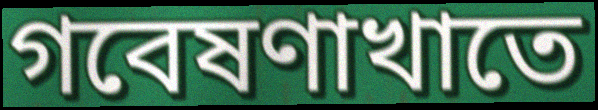
গবেষণাখাতে